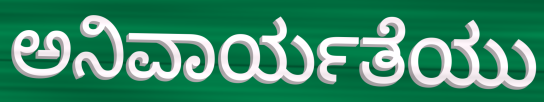
ಅನಿವಾರ್ಯತೆಯು